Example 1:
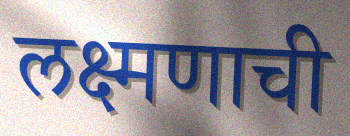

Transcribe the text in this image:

लक्ष्मणाची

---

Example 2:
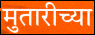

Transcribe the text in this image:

मुतारीच्या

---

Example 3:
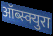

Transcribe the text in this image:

ऑब्स्क्युरा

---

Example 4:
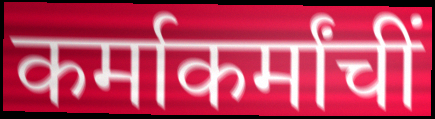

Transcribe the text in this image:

कर्माकर्मांचीं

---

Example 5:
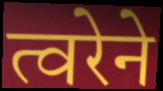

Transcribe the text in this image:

त्वरेने